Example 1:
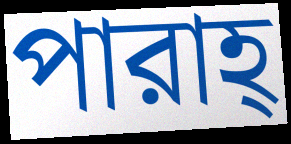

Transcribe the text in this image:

পারাহ্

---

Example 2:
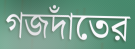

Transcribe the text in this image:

গজদাঁতের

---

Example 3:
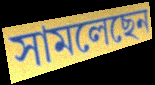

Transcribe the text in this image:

সামলেছেন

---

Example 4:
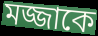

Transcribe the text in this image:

মজ্জাকে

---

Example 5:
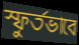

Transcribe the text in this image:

স্ফুর্তভাবে